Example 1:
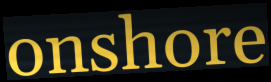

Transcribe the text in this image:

onshore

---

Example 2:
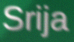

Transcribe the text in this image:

Srija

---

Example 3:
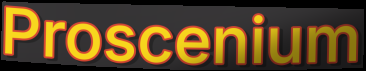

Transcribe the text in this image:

Proscenium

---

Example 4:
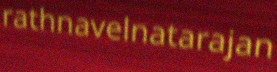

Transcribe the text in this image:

rathnavelnatarajan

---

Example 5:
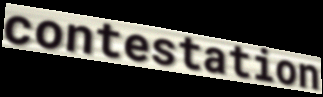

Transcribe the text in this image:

contestation